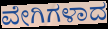
ವೇಗಿಗಳಾದ